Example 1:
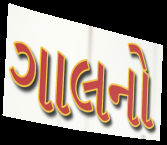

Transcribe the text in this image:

ગાલનો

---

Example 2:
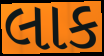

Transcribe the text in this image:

લાક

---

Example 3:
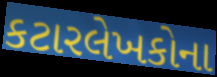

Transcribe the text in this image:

કટારલેખકોના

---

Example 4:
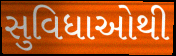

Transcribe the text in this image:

સુવિધાઓથી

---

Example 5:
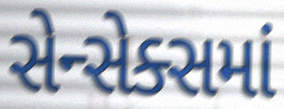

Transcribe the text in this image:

સેન્સેક્સમાં